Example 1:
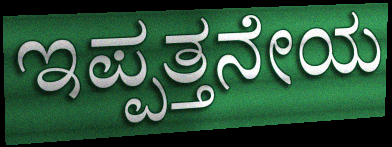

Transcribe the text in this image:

ಇಪ್ಪತ್ತನೇಯ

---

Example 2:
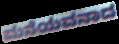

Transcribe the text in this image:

ಮನೆಯವನಾದ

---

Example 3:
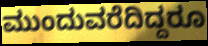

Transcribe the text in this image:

ಮುಂದುವರೆದಿದ್ದರೂ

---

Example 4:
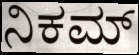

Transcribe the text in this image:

ನಿಕಮ್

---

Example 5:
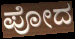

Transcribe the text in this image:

ಪೋದ